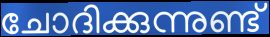
ചോദിക്കുന്നുണ്ട്